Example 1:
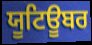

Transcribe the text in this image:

ਯੂਟਿਊਬਰ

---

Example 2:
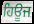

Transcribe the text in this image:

ਹਿਊਜ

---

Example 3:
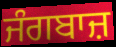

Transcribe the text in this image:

ਜੰਗਬਾਜ਼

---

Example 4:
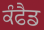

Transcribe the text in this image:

ਕੰਫੈਡ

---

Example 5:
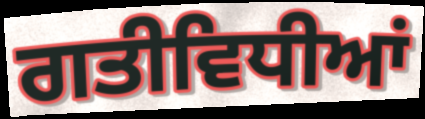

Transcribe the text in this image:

ਗਤੀਵਿਧੀਆਂ